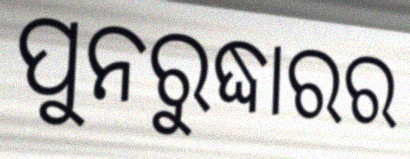
ପୁନରୁଦ୍ଧାରର